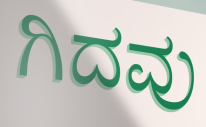
ಗಿದವು